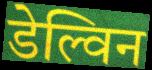
डेल्विन